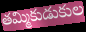
తమ్మికుడుకుల